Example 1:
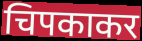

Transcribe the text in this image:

चिपकाकर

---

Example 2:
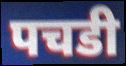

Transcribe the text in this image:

पचडी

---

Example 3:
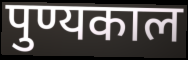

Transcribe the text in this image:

पुण्यकाल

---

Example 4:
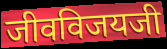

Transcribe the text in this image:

जीवविजयजी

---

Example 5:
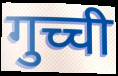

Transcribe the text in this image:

गुच्ची